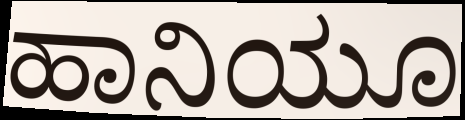
ಹಾನಿಯೂ